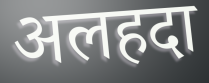
अलहदा